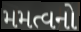
મમત્વનો